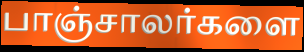
பாஞ்சாலர்களை